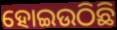
ହୋଇଉଠିଛି